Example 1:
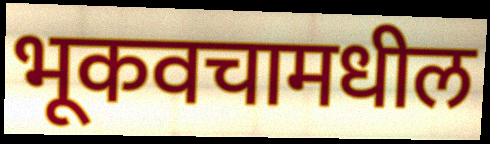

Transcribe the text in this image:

भूकवचामधील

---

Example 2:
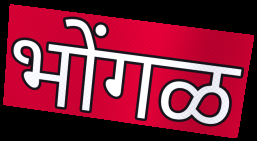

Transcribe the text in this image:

भोंगळ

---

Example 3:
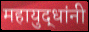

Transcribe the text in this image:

महायुद्धांनी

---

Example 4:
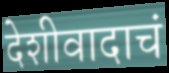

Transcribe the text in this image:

देशीवादाचं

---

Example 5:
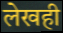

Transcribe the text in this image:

लेखही